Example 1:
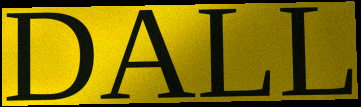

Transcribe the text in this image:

DALL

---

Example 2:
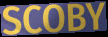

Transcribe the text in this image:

SCOBY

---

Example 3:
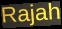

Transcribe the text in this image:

Rajah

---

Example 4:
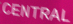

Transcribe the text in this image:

CENTRAL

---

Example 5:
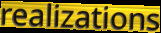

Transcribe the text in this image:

realizations